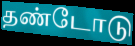
தண்டோடு